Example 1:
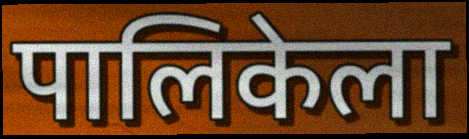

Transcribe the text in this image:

पालिकेला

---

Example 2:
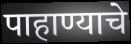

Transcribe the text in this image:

पाहाण्याचे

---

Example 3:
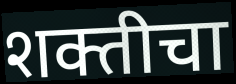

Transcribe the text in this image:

शक्‍तीचा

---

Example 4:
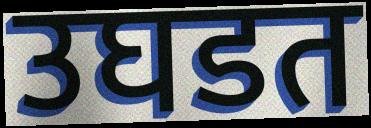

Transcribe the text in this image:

उघडत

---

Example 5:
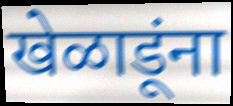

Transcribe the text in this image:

खेळाडूंना